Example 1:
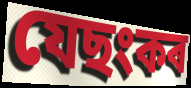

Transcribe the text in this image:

যেছংকৰ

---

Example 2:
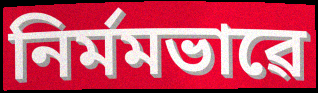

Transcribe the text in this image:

নিৰ্মমভাৱে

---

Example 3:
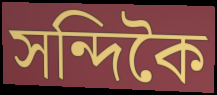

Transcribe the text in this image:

সন্দিকৈ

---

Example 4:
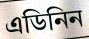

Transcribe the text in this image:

এডিনিন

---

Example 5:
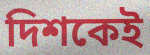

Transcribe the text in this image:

দিশকেই